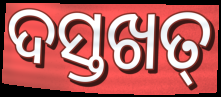
ଦସ୍ତଖତ୍